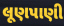
લૂણપાણી